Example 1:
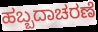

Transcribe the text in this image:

ಹಬ್ಬದಾಚರಣೆ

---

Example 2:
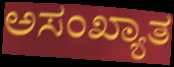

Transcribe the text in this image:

ಅಸಂಖ್ಯಾತ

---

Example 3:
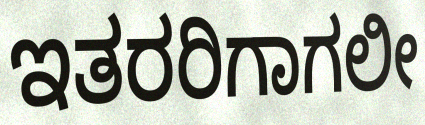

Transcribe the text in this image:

ಇತರರಿಗಾಗಲೀ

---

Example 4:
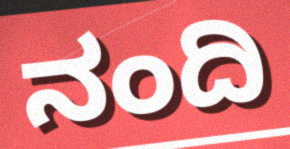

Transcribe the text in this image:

ನಂದಿ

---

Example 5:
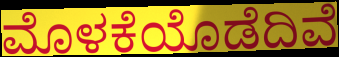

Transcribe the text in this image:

ಮೊಳಕೆಯೊಡೆದಿವೆ